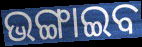
ଭଙ୍ଗାଇବ